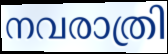
നവരാത്രി